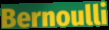
Bernoulli